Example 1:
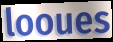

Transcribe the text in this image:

looues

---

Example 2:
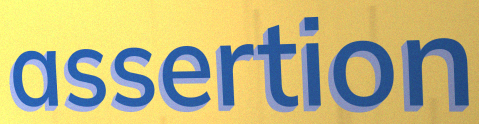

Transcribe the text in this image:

assertion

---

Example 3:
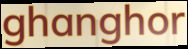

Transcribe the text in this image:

ghanghor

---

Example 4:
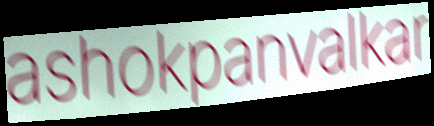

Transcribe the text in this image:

ashokpanvalkar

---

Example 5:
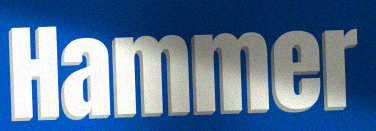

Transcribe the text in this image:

Hammer